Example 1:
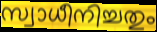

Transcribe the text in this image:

സ്വാധീനിച്ചതും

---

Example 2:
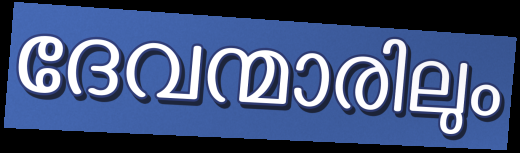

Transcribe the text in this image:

ദേവന്മാരിലും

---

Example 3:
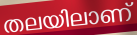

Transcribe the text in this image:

തലയിലാണ്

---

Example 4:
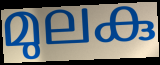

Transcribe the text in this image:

മുലകു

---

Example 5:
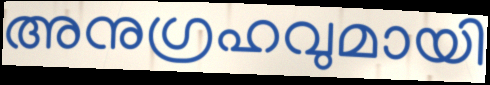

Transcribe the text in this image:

അനുഗ്രഹവുമായി